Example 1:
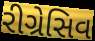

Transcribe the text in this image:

રીગ્રેસિવ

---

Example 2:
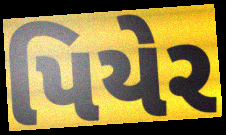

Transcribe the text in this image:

પિયેર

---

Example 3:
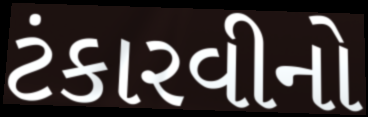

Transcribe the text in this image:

ટંકારવીનો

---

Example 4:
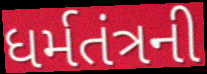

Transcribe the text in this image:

ધર્મતંત્રની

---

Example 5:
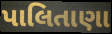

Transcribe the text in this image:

પાલિતાણા